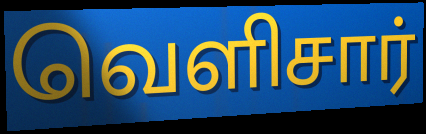
வெளிசார்